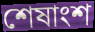
শেষাংশ